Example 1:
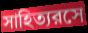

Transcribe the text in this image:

সাহিত্যরসে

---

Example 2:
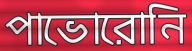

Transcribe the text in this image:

পাভোরোনি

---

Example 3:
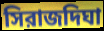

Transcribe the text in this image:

সিরাজদিঘা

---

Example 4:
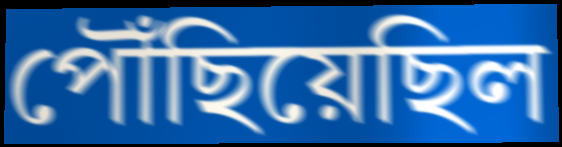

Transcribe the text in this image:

পৌঁছিয়েছিল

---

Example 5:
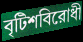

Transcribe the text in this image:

বৃটিশবিরোধী